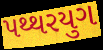
પથ્થરયુગ